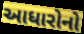
આધારોનો